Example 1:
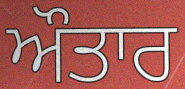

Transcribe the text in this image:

ਔਤਾਰ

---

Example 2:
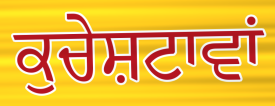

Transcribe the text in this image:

ਕੁਚੇਸ਼ਟਾਵਾਂ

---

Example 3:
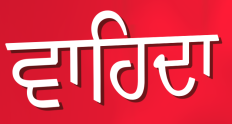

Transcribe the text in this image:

ਵਾਹਿਦਾ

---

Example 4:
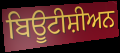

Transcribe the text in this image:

ਬਿਊਟੀਸ਼ੀਅਨ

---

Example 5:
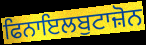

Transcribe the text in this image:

ਫਿਨਾਇਲਬੁਟਾਜ਼ੋਨ